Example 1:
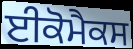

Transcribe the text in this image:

ਈਕੋਮੈਕਸ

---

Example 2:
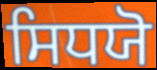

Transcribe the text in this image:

ਸਿਧਯੋ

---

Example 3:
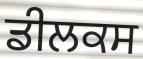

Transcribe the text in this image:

ਡੀਲਕਸ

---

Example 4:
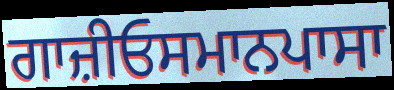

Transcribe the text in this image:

ਗਾਜ਼ੀਓਸਮਾਨਪਾਸਾ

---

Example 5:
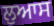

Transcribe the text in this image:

ਲੁਆਸ